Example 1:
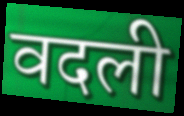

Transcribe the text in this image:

वदली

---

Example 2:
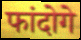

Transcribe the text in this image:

फांदोगे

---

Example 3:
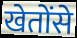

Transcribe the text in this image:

खेतोंसे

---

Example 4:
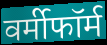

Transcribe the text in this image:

वर्मीफॉर्म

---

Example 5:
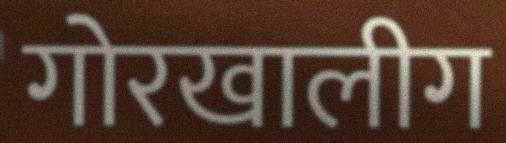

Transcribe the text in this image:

गोरखालीग